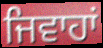
ਜਿਵਾਹਾਂ